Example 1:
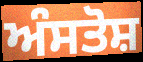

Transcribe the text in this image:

ਅੰਸਤੋਸ਼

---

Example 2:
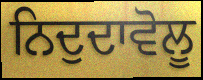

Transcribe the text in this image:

ਨਿਦੁਦਾਵੋਲੂ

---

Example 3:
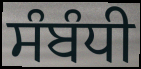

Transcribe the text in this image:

ਸੰਬੰਧੀ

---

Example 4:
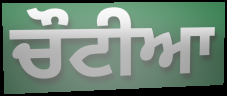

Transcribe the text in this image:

ਚੌਟੀਆ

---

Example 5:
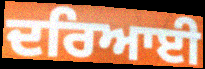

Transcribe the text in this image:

ਦਰਿਆਈ